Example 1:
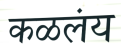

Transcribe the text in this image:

कळलंय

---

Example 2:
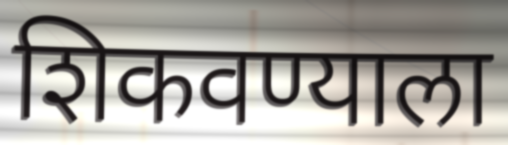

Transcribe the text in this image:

शिकवण्याला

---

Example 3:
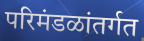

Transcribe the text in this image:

परिमंडळांतर्गत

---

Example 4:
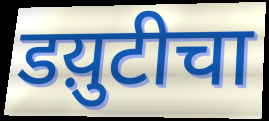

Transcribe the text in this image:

डय़ुटीचा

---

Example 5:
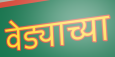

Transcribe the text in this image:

वेड्याच्या